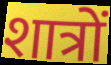
शात्रों